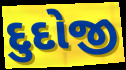
દુદોજી